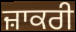
ਜ਼ਾਕਰੀ